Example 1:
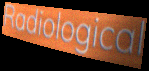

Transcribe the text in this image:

Radiological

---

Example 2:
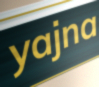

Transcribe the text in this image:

yajna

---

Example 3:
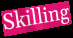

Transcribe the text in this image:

Skilling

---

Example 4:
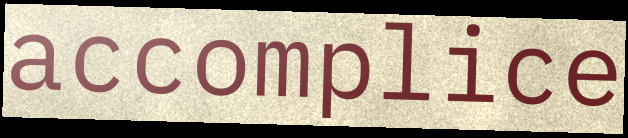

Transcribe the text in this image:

accomplice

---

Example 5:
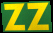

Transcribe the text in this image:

ZZ